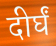
दीर्घं